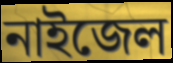
নাইজেল